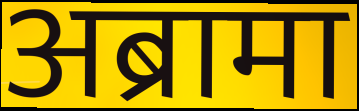
अब्रामा